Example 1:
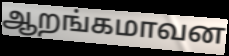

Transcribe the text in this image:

ஆறங்கமாவன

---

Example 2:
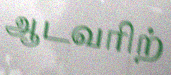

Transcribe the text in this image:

ஆடவரிற்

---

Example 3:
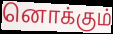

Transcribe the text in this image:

னொக்கும்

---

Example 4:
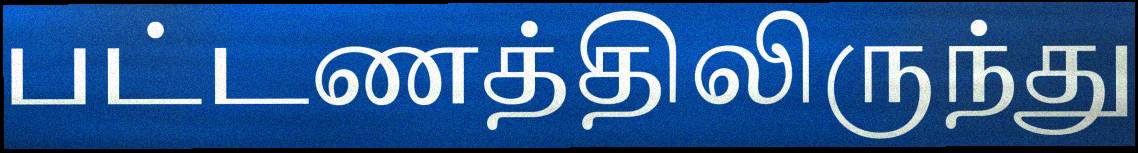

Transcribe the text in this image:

பட்டணத்திலிருந்து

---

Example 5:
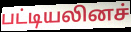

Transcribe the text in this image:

பட்டியலினச்